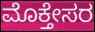
ಮೊಕ್ತೇಸರ